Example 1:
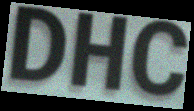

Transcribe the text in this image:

DHC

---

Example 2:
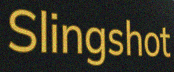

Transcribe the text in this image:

Slingshot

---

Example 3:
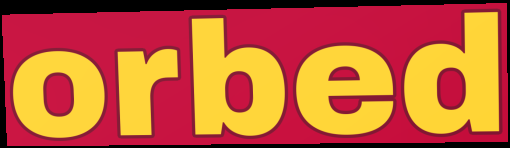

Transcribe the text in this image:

orbed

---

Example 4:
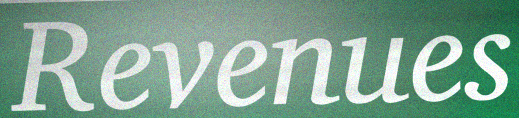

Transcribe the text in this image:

Revenues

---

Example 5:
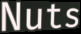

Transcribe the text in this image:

Nuts